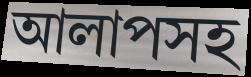
আলাপসহ